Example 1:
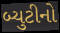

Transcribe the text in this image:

બ્યુટીનો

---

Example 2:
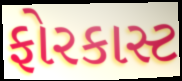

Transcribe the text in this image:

ફોરકાસ્ટ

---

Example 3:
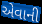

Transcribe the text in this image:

એવાની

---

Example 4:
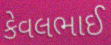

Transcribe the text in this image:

કેવલભાઈ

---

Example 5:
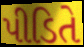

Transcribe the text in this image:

પીડિતે